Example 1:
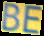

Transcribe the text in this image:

BE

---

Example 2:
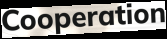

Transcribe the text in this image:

Cooperation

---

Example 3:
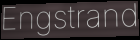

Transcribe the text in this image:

Engstrand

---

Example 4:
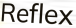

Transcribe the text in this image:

Reflex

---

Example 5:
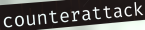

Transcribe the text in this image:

counterattack